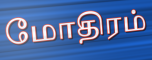
மோதிரம்